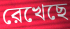
রেখেছে